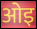
ओइ